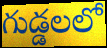
గుడ్డలలో